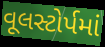
વૂલસ્ટોર્પમાં